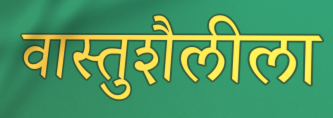
वास्तुशैलीला